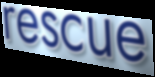
rescue